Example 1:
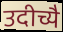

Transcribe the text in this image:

उदीच्यै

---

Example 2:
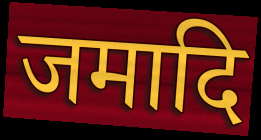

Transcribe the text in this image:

जमादि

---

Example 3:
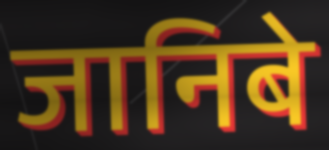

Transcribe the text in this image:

जानिबे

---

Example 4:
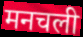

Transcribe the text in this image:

मनचली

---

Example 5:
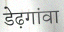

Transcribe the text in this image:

डेढ़गांवा